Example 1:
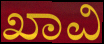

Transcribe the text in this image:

ಖಾವಿ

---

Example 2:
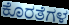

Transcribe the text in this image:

ಕೊರತೆಗಳ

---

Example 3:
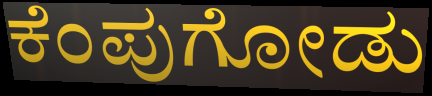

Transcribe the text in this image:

ಕೆಂಪುಗೋಡು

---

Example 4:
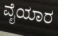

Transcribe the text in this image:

ವೈಯಾರ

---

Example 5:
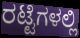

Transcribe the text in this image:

ರಟ್ಟೆಗಳಲ್ಲಿ